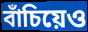
বাঁচিয়েও